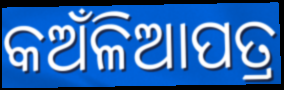
କଅଁଳିଆପତ୍ର